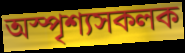
অস্পৃশ্যসকলক